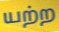
யற்ற